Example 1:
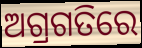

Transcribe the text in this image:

ଅଗ୍ରଗତିରେ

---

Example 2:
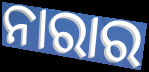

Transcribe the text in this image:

ନାରାର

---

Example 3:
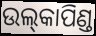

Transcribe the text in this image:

ଉଲ୍‌କାପିଣ୍ଡ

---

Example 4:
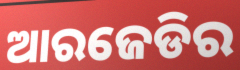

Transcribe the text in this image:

ଆରଜେଡିର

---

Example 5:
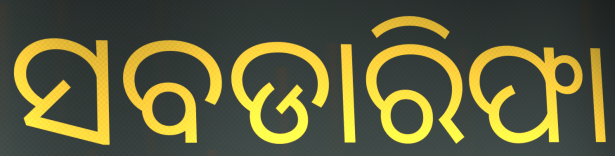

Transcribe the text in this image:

ସବଡାରିଫା